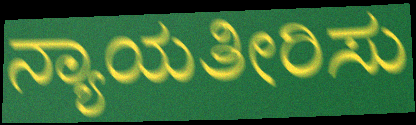
ನ್ಯಾಯತೀರಿಸು